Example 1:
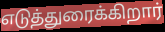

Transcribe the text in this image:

எடுத்துரைக்கிறார்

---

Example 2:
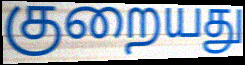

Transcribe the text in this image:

குறையது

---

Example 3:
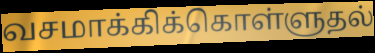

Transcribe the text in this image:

வசமாக்கிக்கொள்ளுதல்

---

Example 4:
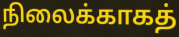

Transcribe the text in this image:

நிலைக்காகத்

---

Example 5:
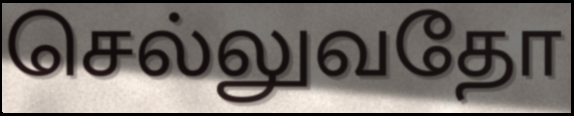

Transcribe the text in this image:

செல்லுவதோ